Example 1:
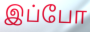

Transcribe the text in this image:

இப்போ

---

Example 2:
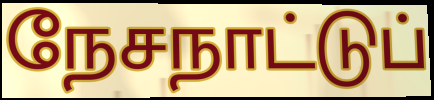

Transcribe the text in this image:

நேசநாட்டுப்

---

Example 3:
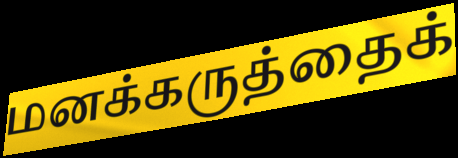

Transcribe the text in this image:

மனக்கருத்தைக்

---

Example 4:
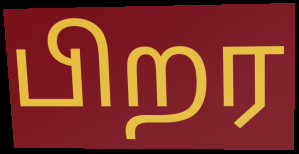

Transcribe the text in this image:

பிறர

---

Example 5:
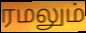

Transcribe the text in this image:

ரமலும்